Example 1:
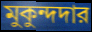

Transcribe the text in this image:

মুকুন্দদার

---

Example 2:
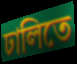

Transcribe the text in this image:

ঢালিতে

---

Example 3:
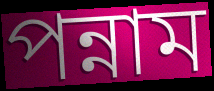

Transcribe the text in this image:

পন্নাম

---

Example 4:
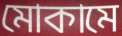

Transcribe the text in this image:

মোকামে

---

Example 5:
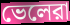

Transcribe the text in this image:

ভেলেরা